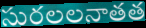
సురలలనాతత